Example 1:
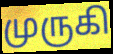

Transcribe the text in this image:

முருகி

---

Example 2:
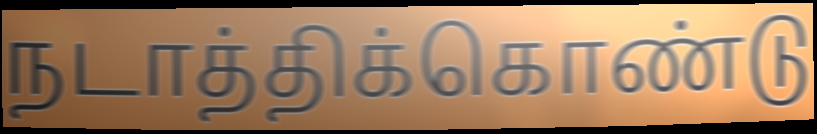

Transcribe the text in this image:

நடாத்திக்கொண்டு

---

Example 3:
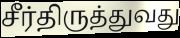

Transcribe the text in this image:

சீர்திருத்துவது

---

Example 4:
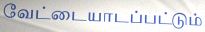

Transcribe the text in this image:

வேட்டையாடப்பட்டும்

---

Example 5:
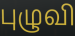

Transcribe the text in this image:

புழுவி